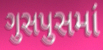
ગુસપુસમાં